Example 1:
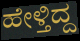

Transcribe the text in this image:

ಹೇಳ್ತಿದ್ದ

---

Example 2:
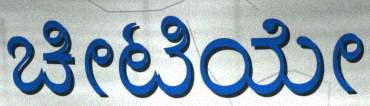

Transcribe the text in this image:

ಚೀಟಿಯೇ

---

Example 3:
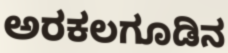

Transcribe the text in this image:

ಅರಕಲಗೂಡಿನ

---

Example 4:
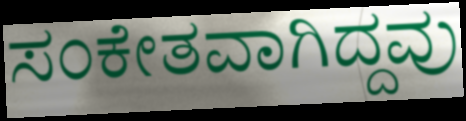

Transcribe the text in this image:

ಸಂಕೇತವಾಗಿದ್ದವು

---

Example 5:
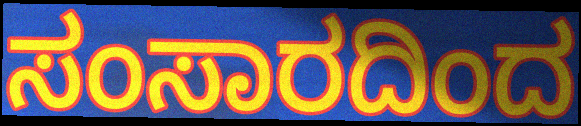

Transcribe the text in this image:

ಸಂಸಾರದಿಂದ